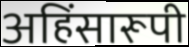
अहिंसारूपी